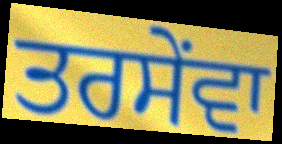
ਤਰਸੇਂਵਾ